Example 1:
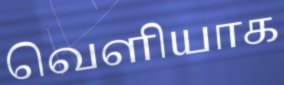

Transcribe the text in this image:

வெளியாக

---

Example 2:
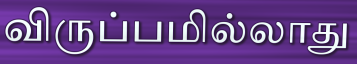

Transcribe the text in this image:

விருப்பமில்லாது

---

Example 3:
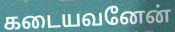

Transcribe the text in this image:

கடையவனேன்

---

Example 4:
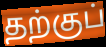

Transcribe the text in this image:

தற்குப்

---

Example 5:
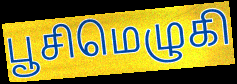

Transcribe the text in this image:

பூசிமெழுகி